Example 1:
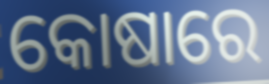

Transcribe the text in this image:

କୋଷାରେ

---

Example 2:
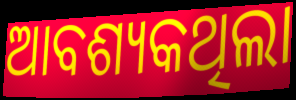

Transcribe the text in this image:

ଆବଶ୍ୟକଥିଲା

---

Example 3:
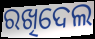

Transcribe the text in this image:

ରଖିଦେଲ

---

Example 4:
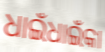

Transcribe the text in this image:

ଧାଇଁଧାଇଁକା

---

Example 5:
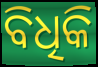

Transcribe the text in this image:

ବିଧିକି